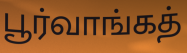
பூர்வாங்கத்